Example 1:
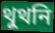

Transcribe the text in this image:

থুথনি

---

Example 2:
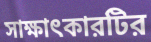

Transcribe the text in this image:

সাক্ষাৎকারটির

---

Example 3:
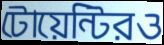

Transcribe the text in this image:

টোয়েন্টিরও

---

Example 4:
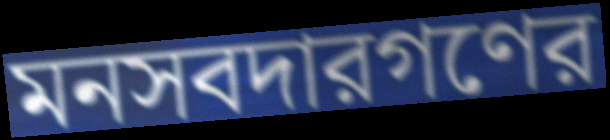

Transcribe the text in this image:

মনসবদারগণের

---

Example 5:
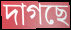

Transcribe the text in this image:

দাগছে